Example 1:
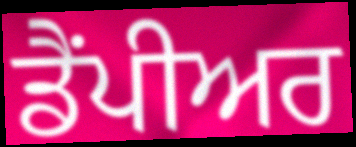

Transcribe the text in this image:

ਡੈਂਪੀਅਰ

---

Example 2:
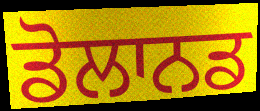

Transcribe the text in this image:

ਡੋਲਾਨਡ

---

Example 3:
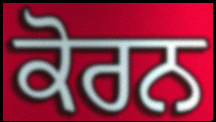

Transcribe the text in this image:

ਕੋਰਨ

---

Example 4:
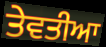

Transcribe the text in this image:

ਤੇਵਤੀਆ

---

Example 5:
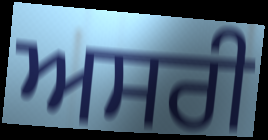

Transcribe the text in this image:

ਅਸਰੀ